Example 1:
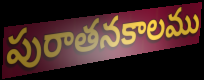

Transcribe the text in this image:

పురాతనకాలము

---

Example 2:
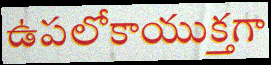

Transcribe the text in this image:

ఉపలోకాయుక్తగా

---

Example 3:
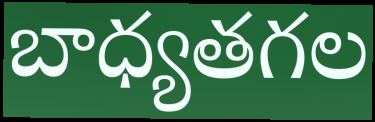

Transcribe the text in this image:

బాధ్యతగల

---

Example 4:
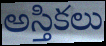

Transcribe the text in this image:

అస్తికలు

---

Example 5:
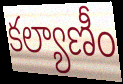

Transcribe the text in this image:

కల్యాణీం